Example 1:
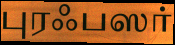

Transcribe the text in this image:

புரஃபஸர்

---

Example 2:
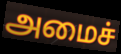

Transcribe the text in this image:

அமைச்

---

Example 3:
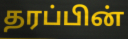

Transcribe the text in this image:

தரப்பின்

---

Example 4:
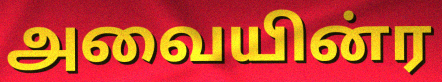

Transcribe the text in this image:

அவையின்ர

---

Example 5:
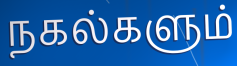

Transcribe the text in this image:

நகல்களும்